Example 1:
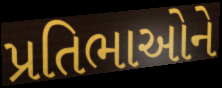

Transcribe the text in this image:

પ્રતિભાઓને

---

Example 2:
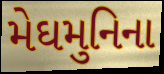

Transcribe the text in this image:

મેઘમુનિના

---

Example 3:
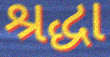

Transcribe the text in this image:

શ્રદ્ધા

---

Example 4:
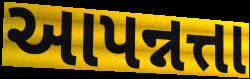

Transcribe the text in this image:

આપન્નત્તા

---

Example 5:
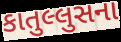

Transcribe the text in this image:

કાતુલ્લુસના